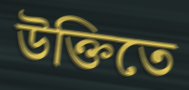
উক্তিতে